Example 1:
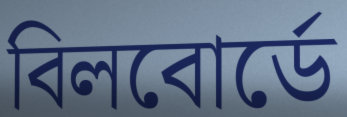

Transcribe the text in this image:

বিলবোর্ডে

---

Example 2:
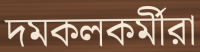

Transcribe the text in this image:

দমকলকর্মীরা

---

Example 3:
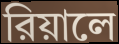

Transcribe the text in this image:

রিয়ালে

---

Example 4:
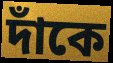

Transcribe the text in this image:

দাঁকে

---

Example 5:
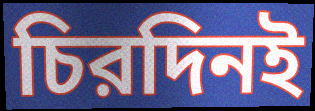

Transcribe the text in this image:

চিরদিনই